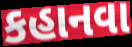
કહાનવા